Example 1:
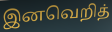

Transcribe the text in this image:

இனவெறித்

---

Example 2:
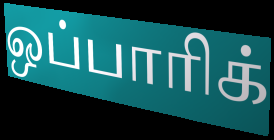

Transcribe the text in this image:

ஒப்பாரிக்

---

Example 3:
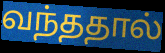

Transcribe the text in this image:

வந்ததால்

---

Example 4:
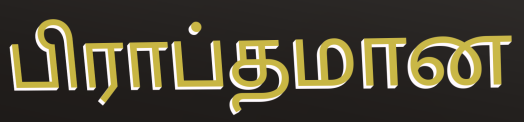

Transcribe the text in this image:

பிராப்தமான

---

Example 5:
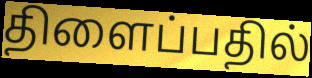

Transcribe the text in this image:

திளைப்பதில்